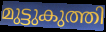
മുട്ടുകുത്തി